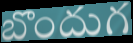
బొందుగ